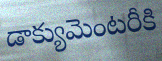
డాక్యుమెంటరీకి